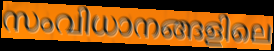
സംവിധാനങ്ങളിലെ